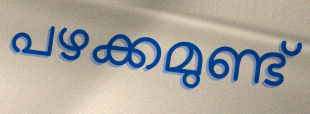
പഴക്കമുണ്ട്